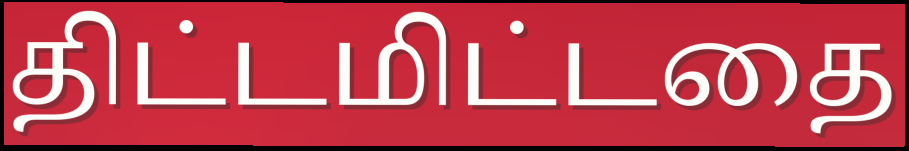
திட்டமிட்டதை